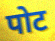
पोट